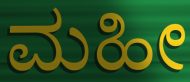
ಮಹೀ